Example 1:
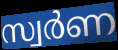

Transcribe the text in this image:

സ്വർണ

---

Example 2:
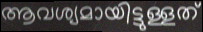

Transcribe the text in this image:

ആവശ്യമായിട്ടുള്ളത്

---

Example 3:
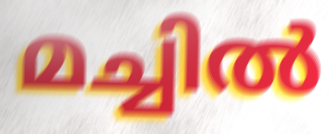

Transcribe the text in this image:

മച്ചിൽ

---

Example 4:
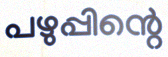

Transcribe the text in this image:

പഴുപ്പിന്റെ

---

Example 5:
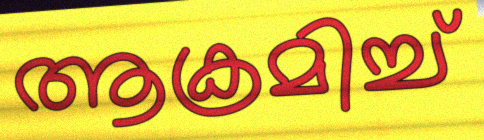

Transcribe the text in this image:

ആക്രമിച്ച്